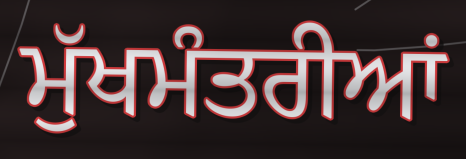
ਮੁੱਖਮੰਤਰੀਆਂ